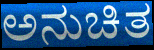
ಅನುಚಿತ